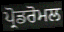
ਪ੍ਰੋਡਰੋਮਲ